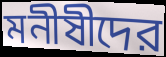
মনীষীদের